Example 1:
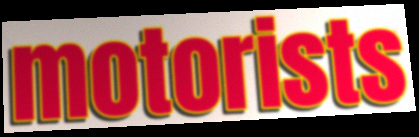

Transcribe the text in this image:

motorists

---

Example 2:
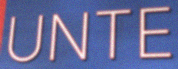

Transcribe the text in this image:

UNTE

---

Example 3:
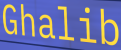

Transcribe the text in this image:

Ghalib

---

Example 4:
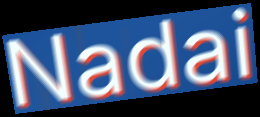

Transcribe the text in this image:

Nadai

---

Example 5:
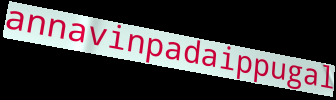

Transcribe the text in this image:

annavinpadaippugal